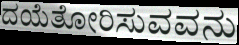
ದಯೆತೋರಿಸುವವನು